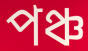
পঞ্চ